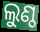
ଲୁଣ୍ଠ